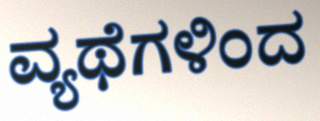
ವ್ಯಥೆಗಳಿಂದ